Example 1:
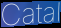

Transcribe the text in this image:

Catal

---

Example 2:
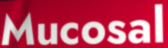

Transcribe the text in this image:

Mucosal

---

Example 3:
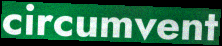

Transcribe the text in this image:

circumvent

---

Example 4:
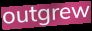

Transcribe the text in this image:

outgrew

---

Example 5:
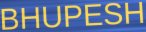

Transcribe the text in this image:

BHUPESH